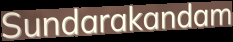
Sundarakandam